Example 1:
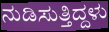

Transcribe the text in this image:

ನುಡಿಸುತ್ತಿದ್ದಳು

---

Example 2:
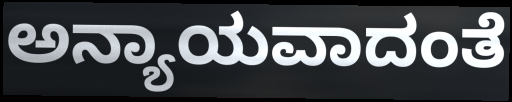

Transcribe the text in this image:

ಅನ್ಯಾಯವಾದಂತೆ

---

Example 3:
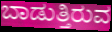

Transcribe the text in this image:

ಬಾಡುತ್ತಿರುವ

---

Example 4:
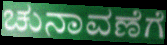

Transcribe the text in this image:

ಚುನಾವಣೆಗೆ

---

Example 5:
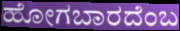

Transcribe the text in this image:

ಹೋಗಬಾರದೆಂಬ